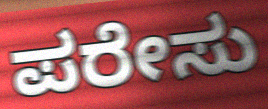
ಪರೇಸು